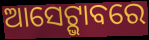
ଆସେଟ୍ଭାବରେ